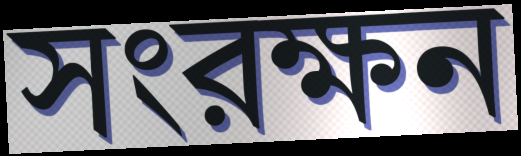
সংরক্ষন